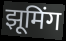
झूमिंग